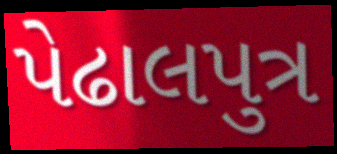
પેઢાલપુત્ર